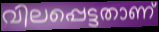
വിലപ്പെട്ടതാണ്